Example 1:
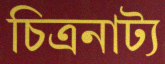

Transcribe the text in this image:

চিত্রনাট্য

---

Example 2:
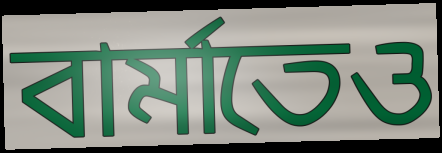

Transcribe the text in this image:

বার্মাতেও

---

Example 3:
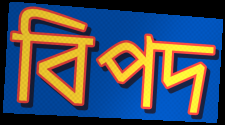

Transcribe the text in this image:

বিপদ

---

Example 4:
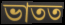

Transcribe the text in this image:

ভাতত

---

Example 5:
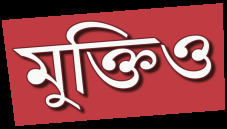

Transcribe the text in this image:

মুক্তিও